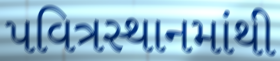
પવિત્રસ્થાનમાંથી